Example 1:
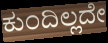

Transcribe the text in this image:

ಕುಂದಿಲ್ಲದೇ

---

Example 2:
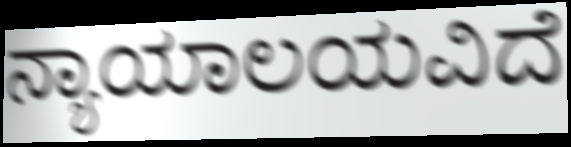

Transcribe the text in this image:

ನ್ಯಾಯಾಲಯವಿದೆ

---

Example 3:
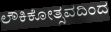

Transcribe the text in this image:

ಲೌಕಿಕೋತ್ಸವದಿಂದ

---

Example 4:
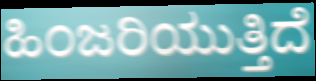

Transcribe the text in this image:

ಹಿಂಜರಿಯುತ್ತಿದೆ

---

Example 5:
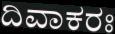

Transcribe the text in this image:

ದಿವಾಕರಃ